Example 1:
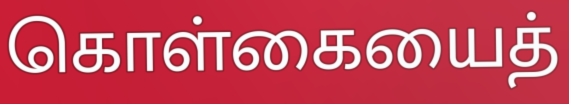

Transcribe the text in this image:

கொள்கையைத்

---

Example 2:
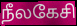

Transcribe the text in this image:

நீலகேசி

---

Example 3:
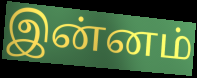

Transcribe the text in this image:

இன்னம்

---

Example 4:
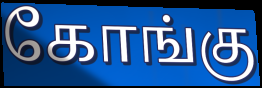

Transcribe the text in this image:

கோங்கு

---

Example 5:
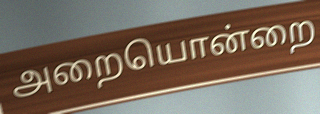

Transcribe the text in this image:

அறையொன்றை